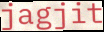
jagjit